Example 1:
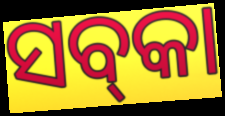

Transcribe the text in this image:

ସବ୍‌କା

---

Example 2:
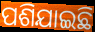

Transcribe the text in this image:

ପଶିଯାଇଛି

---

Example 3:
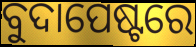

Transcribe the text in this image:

ବୁଦାପେଷ୍ଟରେ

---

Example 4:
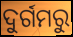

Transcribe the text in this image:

ଦୁର୍ଗମରୁ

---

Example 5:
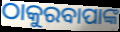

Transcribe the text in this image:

ଠାକୁରବାପାଙ୍କ